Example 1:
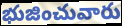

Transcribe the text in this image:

భుజించువారు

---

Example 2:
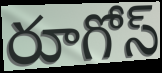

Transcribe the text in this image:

రూగోస్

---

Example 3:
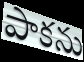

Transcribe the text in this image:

పాకను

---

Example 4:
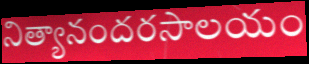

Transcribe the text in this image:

నిత్యానందరసాలయం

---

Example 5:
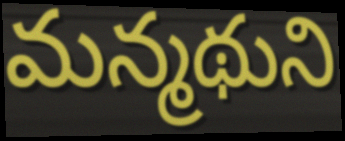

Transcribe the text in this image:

మన్మథుని